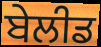
ਬੇਲੀਡ